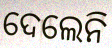
ଦେଲେନି